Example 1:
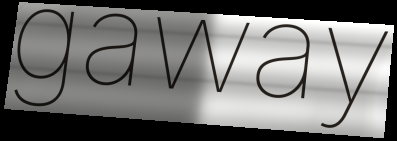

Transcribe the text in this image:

gaway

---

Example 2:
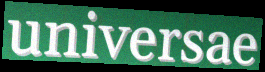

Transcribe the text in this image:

universae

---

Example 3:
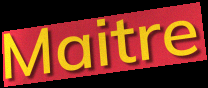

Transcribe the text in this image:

Maitre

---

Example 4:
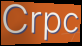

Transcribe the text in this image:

Crpc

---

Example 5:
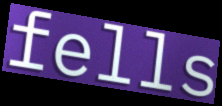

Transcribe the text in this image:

fells